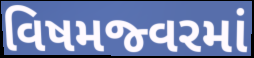
વિષમજ્વરમાં